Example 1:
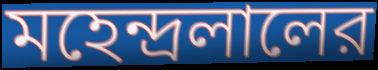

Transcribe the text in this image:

মহেন্দ্রলালের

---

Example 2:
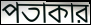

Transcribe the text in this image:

পতাকার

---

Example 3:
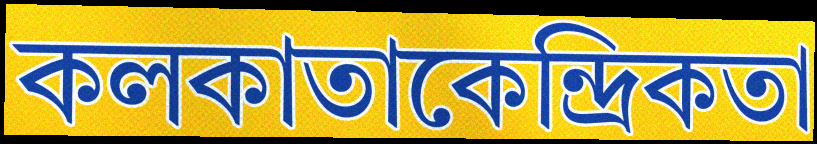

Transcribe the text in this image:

কলকাতাকেন্দ্রিকতা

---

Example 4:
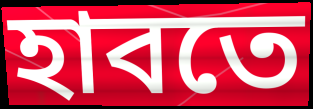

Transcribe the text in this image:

হাবতে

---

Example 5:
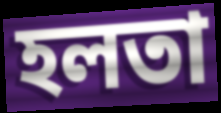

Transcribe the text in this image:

হলতা